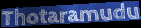
Thotaramudu